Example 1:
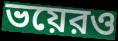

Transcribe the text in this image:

ভয়েরও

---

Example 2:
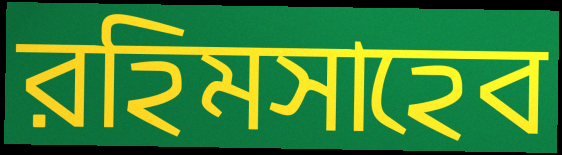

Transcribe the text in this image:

রহিমসাহেব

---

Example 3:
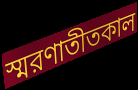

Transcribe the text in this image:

স্মরণাতীতকাল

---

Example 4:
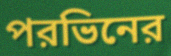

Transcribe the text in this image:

পরভিনের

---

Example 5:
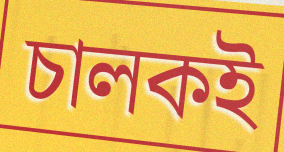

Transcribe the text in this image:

চালকই